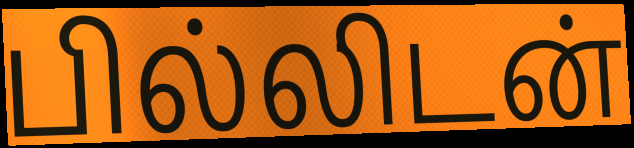
பில்லிடன்